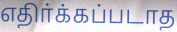
எதிர்க்கப்படாத